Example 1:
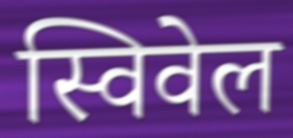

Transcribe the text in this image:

स्विवेल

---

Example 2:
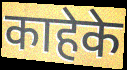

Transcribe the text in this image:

काहेके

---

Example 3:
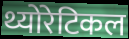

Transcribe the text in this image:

थ्योरेटिकल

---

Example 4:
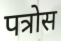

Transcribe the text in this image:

पत्रोस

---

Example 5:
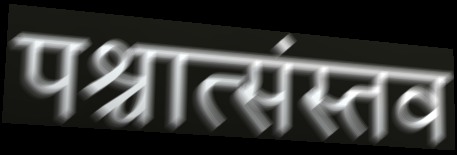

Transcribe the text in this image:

पश्चात्संस्तव